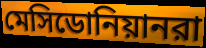
মেসিডোনিয়ানরা